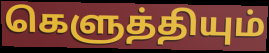
கெளுத்தியும்